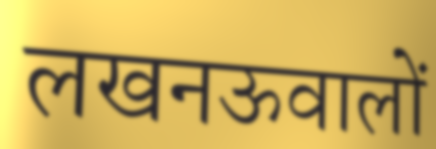
लखनऊवालों